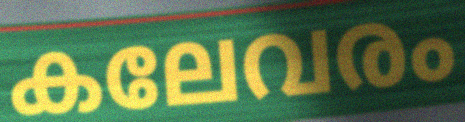
കലേവരം